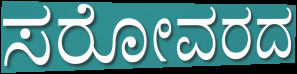
ಸರೋವರದ